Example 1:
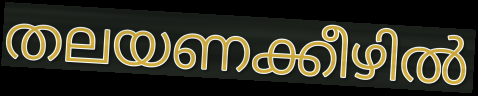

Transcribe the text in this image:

തലയണക്കീഴിൽ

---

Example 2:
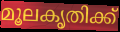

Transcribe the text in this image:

മൂലകൃതിക്ക്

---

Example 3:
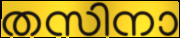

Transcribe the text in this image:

തസിനാ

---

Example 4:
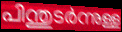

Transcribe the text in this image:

പിന്തുടർന്നുള്ള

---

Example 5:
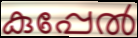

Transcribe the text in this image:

കുപ്പേൽ